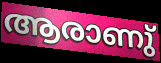
ആരാണു്